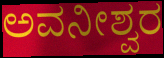
ಅವನೀಶ್ವರ